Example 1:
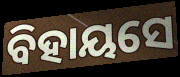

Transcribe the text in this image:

ବିହାୟସେ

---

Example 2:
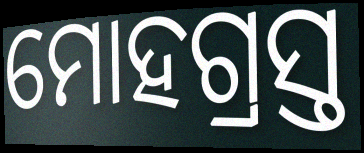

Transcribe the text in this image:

ମୋହଗ୍ରସ୍ତ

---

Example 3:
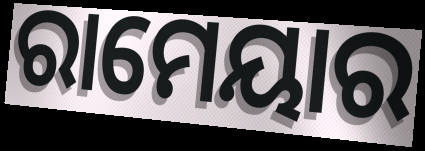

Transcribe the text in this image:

ରାମେୟାର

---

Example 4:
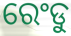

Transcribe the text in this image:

ରେଂଡୁ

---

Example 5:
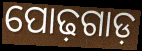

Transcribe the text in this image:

ପୋଢ଼ଗାଡ଼